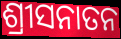
ଶ୍ରୀସନାତନ